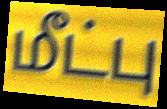
மீட்பு